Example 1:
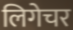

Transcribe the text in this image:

लिगेचर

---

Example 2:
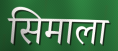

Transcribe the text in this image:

सिमाला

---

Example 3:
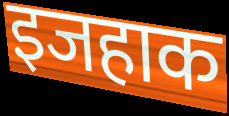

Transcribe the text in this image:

इजहाक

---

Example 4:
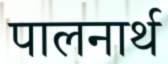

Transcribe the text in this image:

पालनार्थ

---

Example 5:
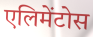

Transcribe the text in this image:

एलिमेंटोस